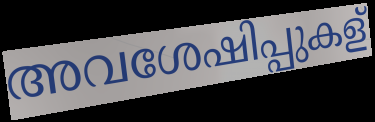
അവശേഷിപ്പുകള്